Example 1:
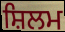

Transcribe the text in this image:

ਸ਼ਿਲਮ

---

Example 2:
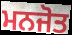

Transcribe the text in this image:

ਮਨਜੋਤ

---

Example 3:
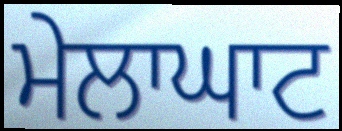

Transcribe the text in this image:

ਮੇਲਾਘਾਟ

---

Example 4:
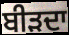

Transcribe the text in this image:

ਬੀੜਦਾ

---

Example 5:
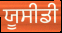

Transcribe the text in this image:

ਯੂਸੀਡੀ